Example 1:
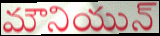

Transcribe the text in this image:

మౌనియున్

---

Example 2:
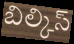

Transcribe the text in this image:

బిల్కిస్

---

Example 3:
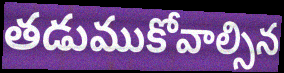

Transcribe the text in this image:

తడుముకోవాల్సిన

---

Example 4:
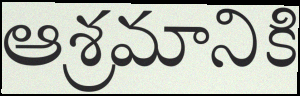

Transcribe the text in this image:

ఆశ్రమానికి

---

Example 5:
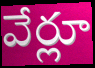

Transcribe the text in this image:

వేర్లూ